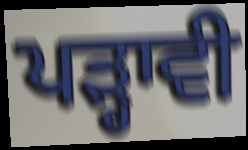
ਪੜ੍ਹਾਵੀ